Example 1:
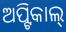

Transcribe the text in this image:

ଅପ୍ଟିକାଲ୍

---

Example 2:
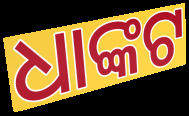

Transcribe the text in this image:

ଧାଙ୍କଟ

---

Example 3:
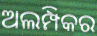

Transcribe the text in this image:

ଅଲମ୍ପିକର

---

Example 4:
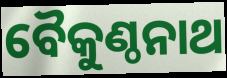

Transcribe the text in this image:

ବୈକୁଣ୍ଠନାଥ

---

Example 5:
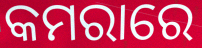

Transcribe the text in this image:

କମରାରେ